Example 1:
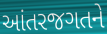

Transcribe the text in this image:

આંતરજગતને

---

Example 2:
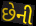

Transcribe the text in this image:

છેની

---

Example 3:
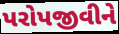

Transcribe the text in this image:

પરોપજીવીને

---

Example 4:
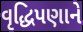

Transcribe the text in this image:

વૃદ્ધિપણાને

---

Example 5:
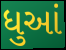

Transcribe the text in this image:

ધુઆં